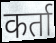
कर्ता